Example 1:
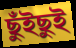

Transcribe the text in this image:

ছুঁইছুই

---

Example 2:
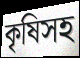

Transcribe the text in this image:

কৃষিসহ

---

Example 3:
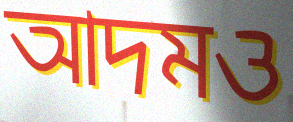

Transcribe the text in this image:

আদমও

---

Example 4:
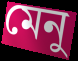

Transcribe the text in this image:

মেনু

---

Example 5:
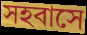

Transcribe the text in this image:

সহবাসে